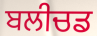
ਬਲੀਚਡ